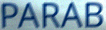
PARAB